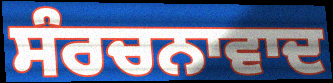
ਸੰਰਚਨਾਵਾਦ